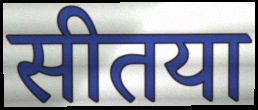
सीतया